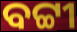
ବଟ୍ଟୀ